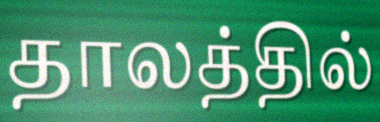
தாலத்தில்